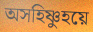
অসহিষ্ণুহয়ে